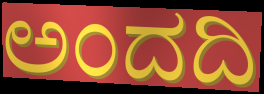
ಅಂದದಿ